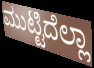
ಮುಟ್ಟಿದೆಲ್ಲಾ